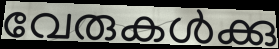
വേരുകൾക്കു